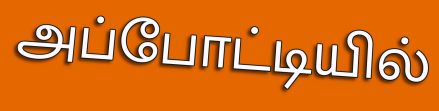
அப்போட்டியில்